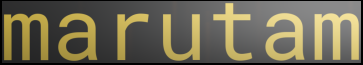
marutam